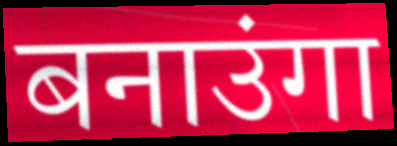
बनाउंगा